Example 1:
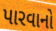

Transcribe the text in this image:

પારવાનો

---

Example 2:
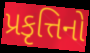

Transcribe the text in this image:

પ્રકૃત્તિનો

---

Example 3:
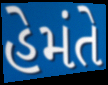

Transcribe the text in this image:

હેમંતે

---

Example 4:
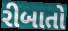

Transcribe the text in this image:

રીબાતો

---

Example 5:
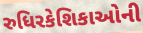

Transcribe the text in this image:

રુધિરકેશિકાઓની